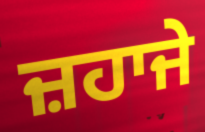
ਜ਼ਹਾਜੇ